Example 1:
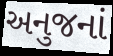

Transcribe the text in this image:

અનુજનાં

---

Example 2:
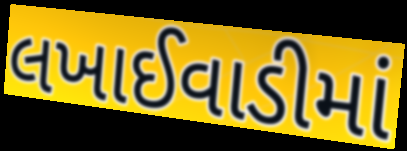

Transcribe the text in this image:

લખાઈવાડીમાં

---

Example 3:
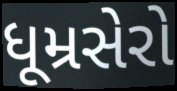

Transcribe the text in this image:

ધૂમ્રસેરો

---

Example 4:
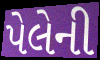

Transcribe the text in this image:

પેલેની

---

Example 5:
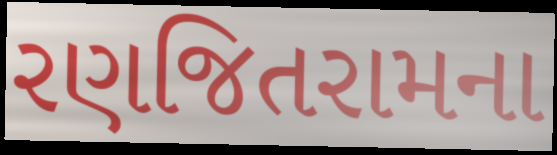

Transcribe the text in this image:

રણજિતરામના